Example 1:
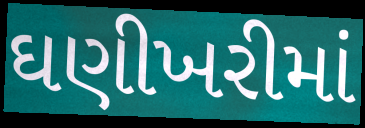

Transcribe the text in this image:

ઘણીખરીમાં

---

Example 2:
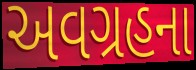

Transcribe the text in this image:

અવગ્રહના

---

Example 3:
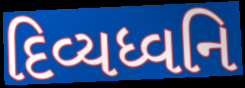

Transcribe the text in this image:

દિવ્યધ્વનિ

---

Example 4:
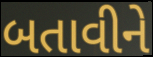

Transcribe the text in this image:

બતાવીને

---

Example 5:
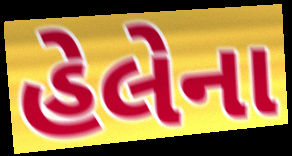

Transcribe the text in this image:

હેલેના